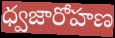
ధ్వజారోహణ